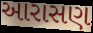
આરાસણ